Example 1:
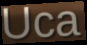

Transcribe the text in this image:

Uca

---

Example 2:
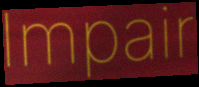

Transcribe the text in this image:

Impair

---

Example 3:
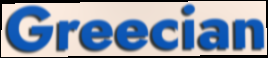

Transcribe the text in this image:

Greecian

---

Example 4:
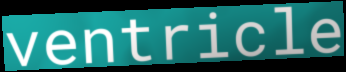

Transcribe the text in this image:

ventricle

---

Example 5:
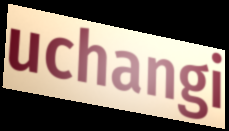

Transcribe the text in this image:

uchangi